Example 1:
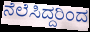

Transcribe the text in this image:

ನೆಲೆಸಿದ್ದರಿಂದ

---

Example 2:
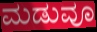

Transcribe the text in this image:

ಮಡುವೂ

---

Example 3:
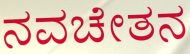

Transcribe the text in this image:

ನವಚೇತನ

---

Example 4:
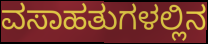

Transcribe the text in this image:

ವಸಾಹತುಗಳಲ್ಲಿನ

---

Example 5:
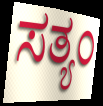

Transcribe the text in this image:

ಸತ್ಯಂ